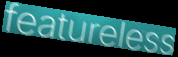
featureless